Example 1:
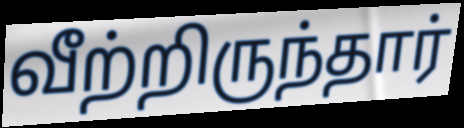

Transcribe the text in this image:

வீற்றிருந்தார்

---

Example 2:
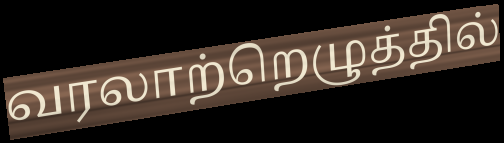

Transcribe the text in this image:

வரலாற்றெழுத்தில்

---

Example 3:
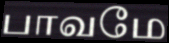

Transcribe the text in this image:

பாவமே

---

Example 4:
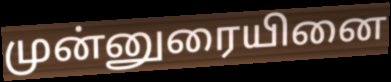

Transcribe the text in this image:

முன்னுரையினை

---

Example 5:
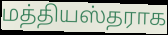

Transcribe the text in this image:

மத்தியஸ்தராக